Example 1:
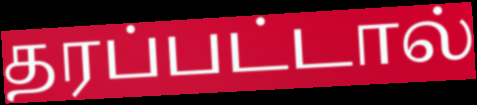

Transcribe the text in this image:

தரப்பட்டால்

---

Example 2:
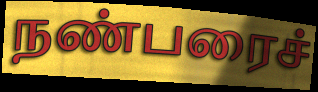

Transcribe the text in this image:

நண்பரைச்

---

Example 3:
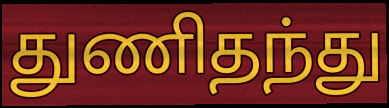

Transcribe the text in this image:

துணிதந்து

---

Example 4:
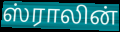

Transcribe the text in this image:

ஸ்ராலின்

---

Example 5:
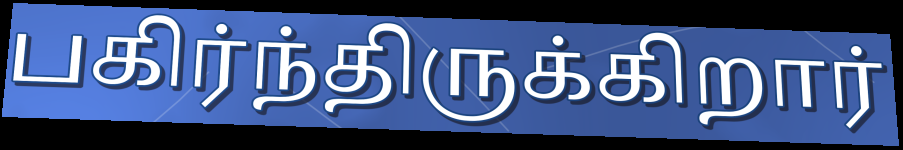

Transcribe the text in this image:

பகிர்ந்திருக்கிறார்